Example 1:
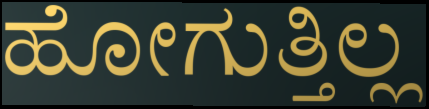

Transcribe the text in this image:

ಹೋಗುತ್ತಿಲ್ಲ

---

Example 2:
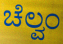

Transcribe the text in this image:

ಚೆಲ್ವಂ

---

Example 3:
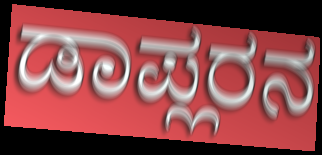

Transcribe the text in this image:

ಡಾಪ್ಲರನ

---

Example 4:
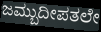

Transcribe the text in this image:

ಜಮ್ಬುದೀಪತಲೇ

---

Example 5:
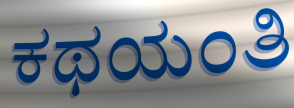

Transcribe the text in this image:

ಕಥಯಂತಿ